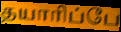
தயாரிப்பே